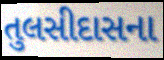
તુલસીદાસના